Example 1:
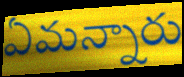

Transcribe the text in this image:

ఏమన్నారు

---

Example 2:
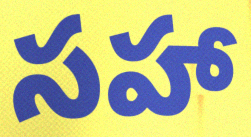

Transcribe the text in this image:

సహా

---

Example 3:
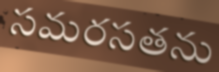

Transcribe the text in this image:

సమరసతను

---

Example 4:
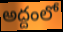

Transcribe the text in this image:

అద్దంలో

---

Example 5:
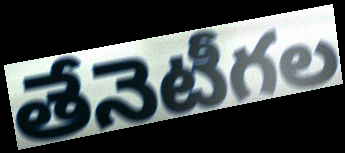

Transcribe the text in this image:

తేనెటీగల